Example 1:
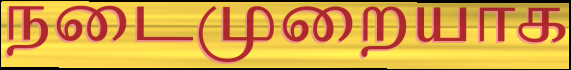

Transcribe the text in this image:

நடைமுறையாக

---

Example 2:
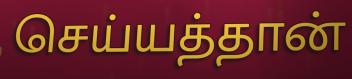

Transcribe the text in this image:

செய்யத்தான்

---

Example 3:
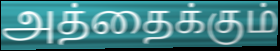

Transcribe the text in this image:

அத்தைக்கும்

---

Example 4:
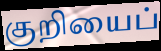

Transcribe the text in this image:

குறியைப்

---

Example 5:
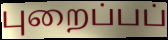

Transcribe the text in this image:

புறைப்பப்